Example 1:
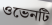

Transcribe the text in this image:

ওভেনটি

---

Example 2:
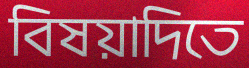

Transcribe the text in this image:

বিষয়াদিতে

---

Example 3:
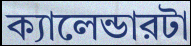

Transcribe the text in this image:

ক্যালেন্ডারটা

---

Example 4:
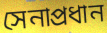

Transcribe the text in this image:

সেনাপ্রধান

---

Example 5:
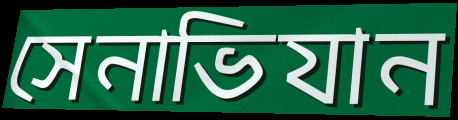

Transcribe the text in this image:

সেনাভিযান